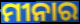
ମୀନାର